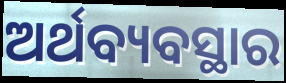
ଅର୍ଥବ୍ୟବସ୍ଥାର